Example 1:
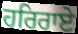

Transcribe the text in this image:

ਹਰਿਰਾਏ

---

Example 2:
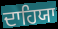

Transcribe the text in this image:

ਦਾਹਿਯਾ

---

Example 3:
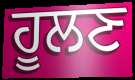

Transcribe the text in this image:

ਹੂਲਣ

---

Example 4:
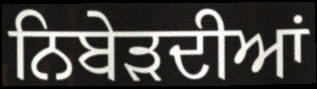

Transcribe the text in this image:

ਨਿਬੇੜਦੀਆਂ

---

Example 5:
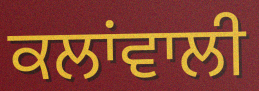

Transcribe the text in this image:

ਕਲਾਂਵਾਲੀ